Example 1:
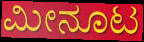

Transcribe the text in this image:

ಮೀನೂಟ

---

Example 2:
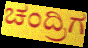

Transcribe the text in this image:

ಚಂದ್ರಿಗ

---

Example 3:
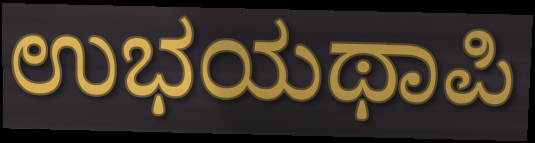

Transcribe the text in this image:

ಉಭಯಥಾಪಿ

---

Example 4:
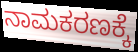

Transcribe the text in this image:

ನಾಮಕರಣಕ್ಕೆ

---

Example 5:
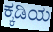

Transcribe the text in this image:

ಕ್ಕಡಿಯ